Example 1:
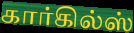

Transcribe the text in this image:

கார்கில்ஸ்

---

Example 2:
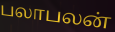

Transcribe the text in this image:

பலாபலன்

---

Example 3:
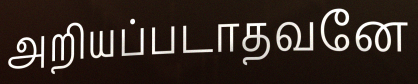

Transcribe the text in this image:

அறியப்படாதவனே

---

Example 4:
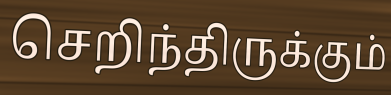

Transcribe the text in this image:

செறிந்திருக்கும்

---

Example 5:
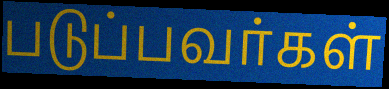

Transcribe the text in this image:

படுப்பவர்கள்